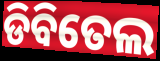
ଡିବିତେଲ